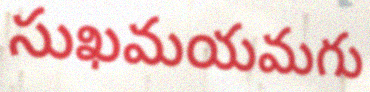
సుఖమయమగు